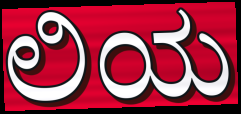
ಲಿಯ